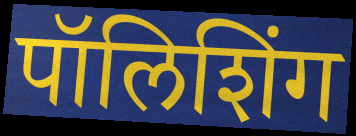
पॉलिशिंग